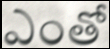
ఎంతో